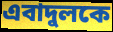
এবাদুলকে